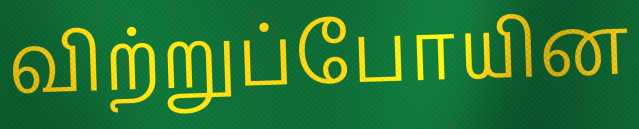
விற்றுப்போயின